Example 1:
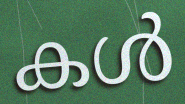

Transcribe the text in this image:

കൾ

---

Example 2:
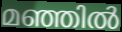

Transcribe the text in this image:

മഞ്ഞിൽ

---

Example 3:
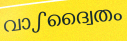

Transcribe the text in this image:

വാഽദ്വൈതം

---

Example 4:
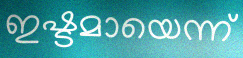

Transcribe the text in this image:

ഇഷ്ടമായെന്ന്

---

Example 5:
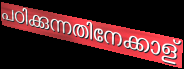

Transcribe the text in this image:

പഠിക്കുന്നതിനേക്കാള്